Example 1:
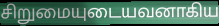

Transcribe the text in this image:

சிறுமையுடையவனாகிய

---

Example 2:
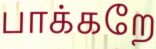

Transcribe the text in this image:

பாக்கறே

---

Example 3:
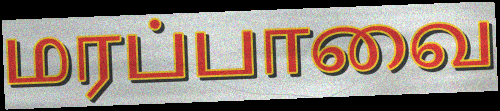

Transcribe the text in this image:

மரப்பாவை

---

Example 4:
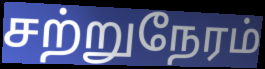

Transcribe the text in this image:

சற்றுநேரம்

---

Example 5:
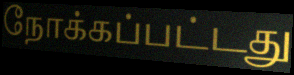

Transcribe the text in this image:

நோக்கப்பட்டது